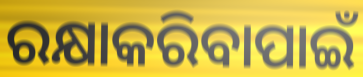
ରକ୍ଷାକରିବାପାଇଁ